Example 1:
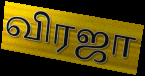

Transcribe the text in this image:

விரஜா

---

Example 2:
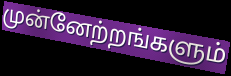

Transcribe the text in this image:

முன்னேற்றங்களும்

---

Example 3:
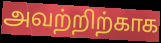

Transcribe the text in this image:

அவற்றிற்காக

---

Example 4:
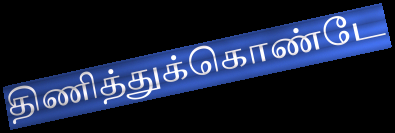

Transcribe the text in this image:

திணித்துக்கொண்டே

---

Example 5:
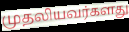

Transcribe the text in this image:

முதலியவர்களது